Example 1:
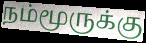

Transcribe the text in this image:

நம்மூருக்கு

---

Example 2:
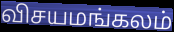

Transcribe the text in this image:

விசயமங்கலம்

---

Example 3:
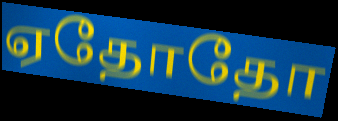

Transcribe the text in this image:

ஏதோதோ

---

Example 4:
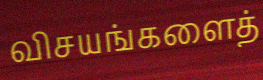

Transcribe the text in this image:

விசயங்களைத்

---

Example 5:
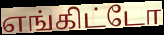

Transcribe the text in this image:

எங்கிட்டோ